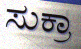
ಸುಕ್ರಾ